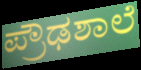
ಪ್ರೌಢಶಾಲೆ